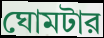
ঘোমটার